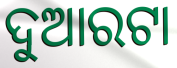
ଦୁଆରଟା